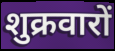
शुक्रवारों